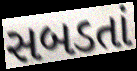
સબડતાં